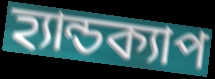
হ্যান্ডক্যাপ